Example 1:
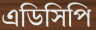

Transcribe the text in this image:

এডিসিপি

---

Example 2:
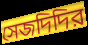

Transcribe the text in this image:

সেজদিদির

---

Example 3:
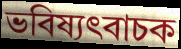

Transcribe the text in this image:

ভবিষ্যৎবাচক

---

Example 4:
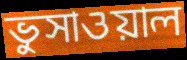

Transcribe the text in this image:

ভুসাওয়াল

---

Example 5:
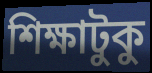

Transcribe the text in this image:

শিক্ষাটুকু